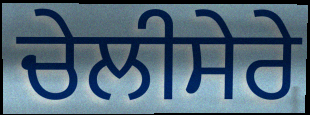
ਚੇਲੀਸੇਰੇ